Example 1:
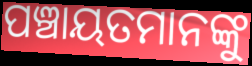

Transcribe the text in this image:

ପଞ୍ଚାୟତମାନଙ୍କୁ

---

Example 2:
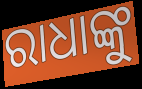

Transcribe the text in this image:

ରାଧାଙ୍କୁ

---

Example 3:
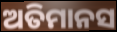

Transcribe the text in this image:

ଅତିମାନସ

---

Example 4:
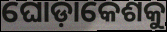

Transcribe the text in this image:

ଘୋଡ଼ାକେଶକୁ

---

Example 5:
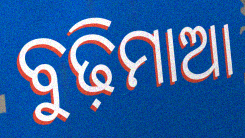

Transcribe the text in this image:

ବୁଢ଼ିମାଆ